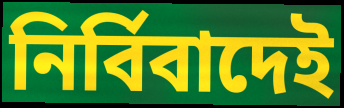
নির্বিবাদেই